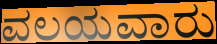
ವಲಯವಾರು